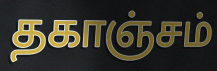
தகாஞ்சம்